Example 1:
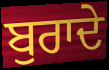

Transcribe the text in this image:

ਬੁਰਾਦੇ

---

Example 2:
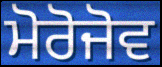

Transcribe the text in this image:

ਮੋਰੋਜੋਵ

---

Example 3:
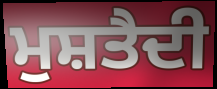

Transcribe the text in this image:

ਮੁਸ਼ਤੈਦੀ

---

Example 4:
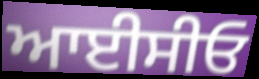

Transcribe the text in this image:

ਆਈਸੀਓ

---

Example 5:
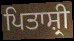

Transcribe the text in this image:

ਪਿਤਾਸ਼੍ਰੀ